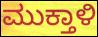
ಮುಕ್ತಾಳಿ